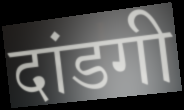
दांडगी